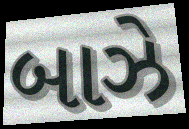
બાઝે